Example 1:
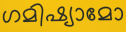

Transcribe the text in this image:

ഗമിഷ്യാമോ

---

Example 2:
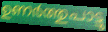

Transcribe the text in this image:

ഉണർത്തുപാട്ടു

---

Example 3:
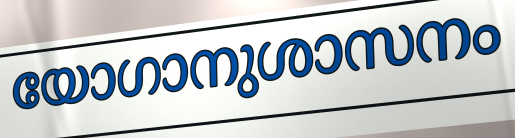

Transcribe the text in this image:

യോഗാനുശാസനം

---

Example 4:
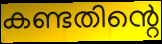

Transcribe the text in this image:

കണ്ടതിന്റെ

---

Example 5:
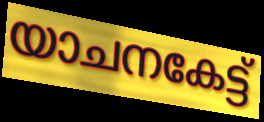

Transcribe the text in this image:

യാചനകേട്ട്